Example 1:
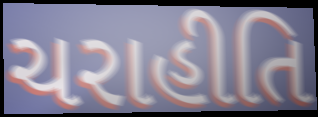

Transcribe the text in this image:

ચરાહીતિ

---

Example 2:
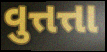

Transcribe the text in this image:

વુત્તત્તા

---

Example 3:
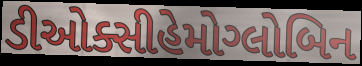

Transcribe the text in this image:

ડીઓક્સીહેમોગ્લોબિન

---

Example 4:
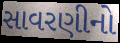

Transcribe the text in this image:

સાવરણીનો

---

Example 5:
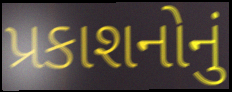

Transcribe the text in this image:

પ્રકાશનોનું